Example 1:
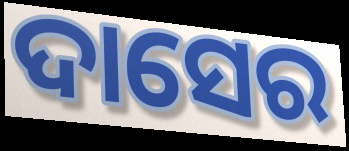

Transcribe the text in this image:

ଦାସେର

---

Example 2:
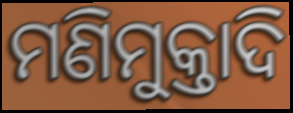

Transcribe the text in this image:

ମଣିମୁକ୍ତାଦି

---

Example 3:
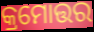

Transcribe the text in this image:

କ୍ରମୋତ୍ତର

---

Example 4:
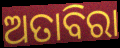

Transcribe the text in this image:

ଅତାବିରା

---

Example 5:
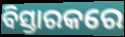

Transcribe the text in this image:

ବିସ୍ତାରକରେ